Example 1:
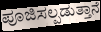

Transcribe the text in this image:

ಪೂಜಿಸಲ್ಪಡುತ್ತಾನೆ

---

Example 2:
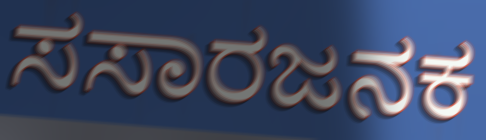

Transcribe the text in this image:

ಸಸಾರಜನಕ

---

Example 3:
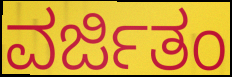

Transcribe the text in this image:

ವರ್ಜಿತಂ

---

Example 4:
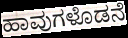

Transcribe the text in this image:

ಹಾವುಗಳೊಡನೆ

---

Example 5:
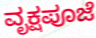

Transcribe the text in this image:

ವೃಕ್ಷಪೂಜೆ